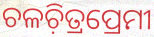
ଚଳଚ଼ିତ୍ରପ୍ରେମୀ